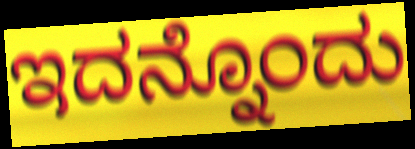
ಇದನ್ನೊಂದು